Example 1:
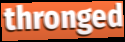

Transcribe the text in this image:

thronged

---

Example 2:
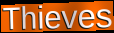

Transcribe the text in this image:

Thieves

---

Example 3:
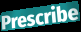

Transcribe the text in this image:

Prescribe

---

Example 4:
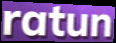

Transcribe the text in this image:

ratun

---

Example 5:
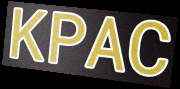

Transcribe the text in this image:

KPAC